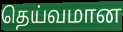
தெய்வமான